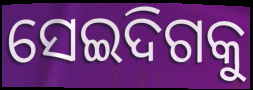
ସେଇଦିଗକୁ